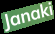
Janaki